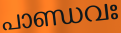
പാണ്ഡവഃ